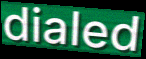
dialed